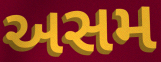
અસમ